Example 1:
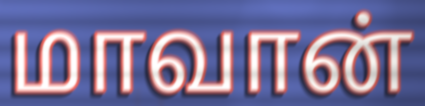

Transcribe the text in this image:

மாவான்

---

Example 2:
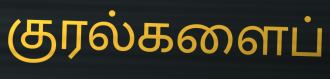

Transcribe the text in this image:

குரல்களைப்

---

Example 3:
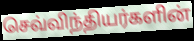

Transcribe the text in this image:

செவ்விந்தியர்களின்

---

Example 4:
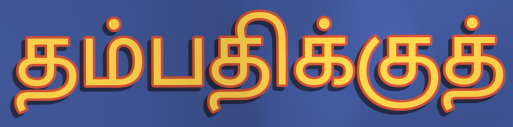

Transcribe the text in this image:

தம்பதிக்குத்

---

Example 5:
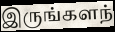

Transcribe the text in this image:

இருங்களந்